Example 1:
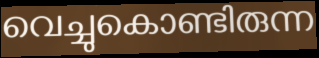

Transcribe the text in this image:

വെച്ചുകൊണ്ടിരുന്ന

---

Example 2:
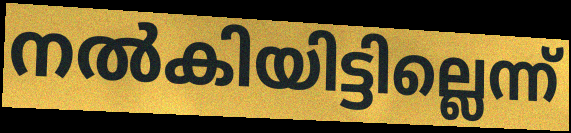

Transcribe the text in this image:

നൽകിയിട്ടില്ലെന്ന്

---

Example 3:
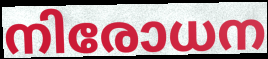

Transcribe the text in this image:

നിരോധന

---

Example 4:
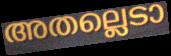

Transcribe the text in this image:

അതല്ലെടാ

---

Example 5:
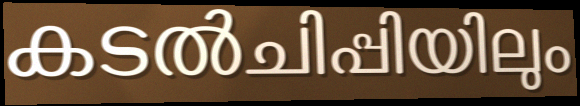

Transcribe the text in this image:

കടൽചിപ്പിയിലും